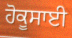
ਹੋਕੂਸਾਈ